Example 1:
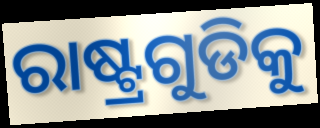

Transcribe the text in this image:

ରାଷ୍ଟ୍ରଗୁଡିକୁ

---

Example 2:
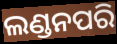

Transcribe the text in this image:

ଲଣ୍ଡନପରି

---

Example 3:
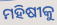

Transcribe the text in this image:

ମହିଷୀକୁ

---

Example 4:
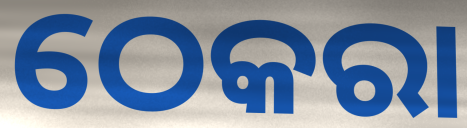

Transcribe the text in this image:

ଠେକରା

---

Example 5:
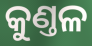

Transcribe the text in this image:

କୁଣ୍ତଳ